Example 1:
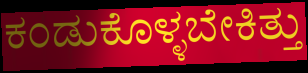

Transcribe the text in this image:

ಕಂಡುಕೊಳ್ಳಬೇಕಿತ್ತು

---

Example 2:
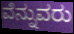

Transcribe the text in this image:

ವೆನ್ನುವರು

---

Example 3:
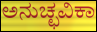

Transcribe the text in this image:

ಅನುಚ್ಛವಿಕಾ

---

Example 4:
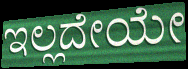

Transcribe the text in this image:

ಇಲ್ಲದೇಯೇ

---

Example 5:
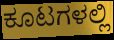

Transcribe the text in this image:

ಕೂಟಗಳಲ್ಲಿ